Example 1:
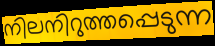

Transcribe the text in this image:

നിലനിറുത്തപ്പെടുന്ന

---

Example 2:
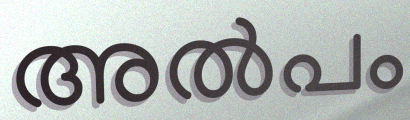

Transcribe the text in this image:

അൽപം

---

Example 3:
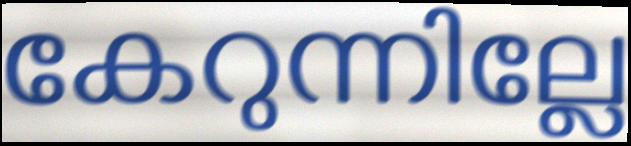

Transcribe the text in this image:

കേറുന്നില്ലേ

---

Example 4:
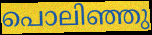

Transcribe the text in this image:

പൊലിഞ്ഞു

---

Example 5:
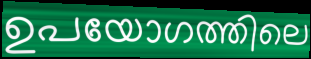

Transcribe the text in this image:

ഉപയോഗത്തിലെ